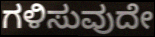
ಗಳಿಸುವುದೇ